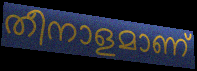
തീനാളമാണ്